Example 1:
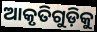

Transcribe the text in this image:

ଆକୃତିଗୁଡ଼ିକୁ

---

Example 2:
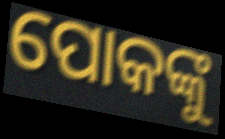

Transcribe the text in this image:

ପୋକଙ୍କୁ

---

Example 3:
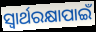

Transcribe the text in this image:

ସ୍ୱାର୍ଥରକ୍ଷାପାଇଁ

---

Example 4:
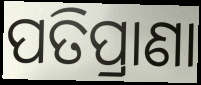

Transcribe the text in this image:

ପତିପ୍ରାଣା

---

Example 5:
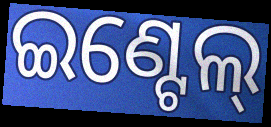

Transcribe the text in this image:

ଇଣ୍ଟେଲ୍